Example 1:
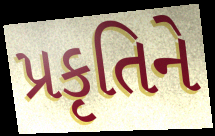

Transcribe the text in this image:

પ્રકૃતિને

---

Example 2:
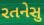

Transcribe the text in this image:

રતનેસુ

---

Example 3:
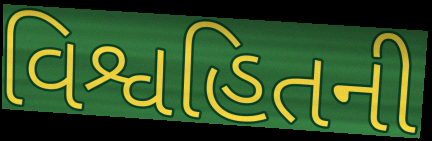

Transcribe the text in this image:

વિશ્વહિતની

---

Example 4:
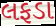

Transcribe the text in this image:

લફડા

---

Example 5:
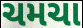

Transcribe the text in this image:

ચમચા